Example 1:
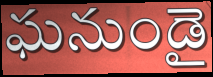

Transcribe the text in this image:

ఘనుండై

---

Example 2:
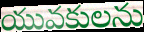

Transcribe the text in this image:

యువకులను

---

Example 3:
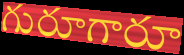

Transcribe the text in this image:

గురూగారూ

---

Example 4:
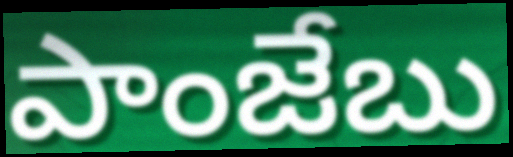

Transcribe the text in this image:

పాంజేబు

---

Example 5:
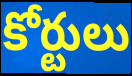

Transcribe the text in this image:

కోర్టులు